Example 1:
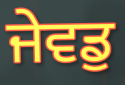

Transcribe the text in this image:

ਜੇਵਡੁ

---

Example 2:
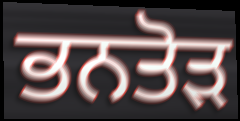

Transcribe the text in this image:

ਭਨਤੋੜ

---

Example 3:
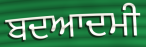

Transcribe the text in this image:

ਬਦਆਦਮੀ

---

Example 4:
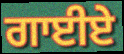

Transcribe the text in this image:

ਗਾਈਏ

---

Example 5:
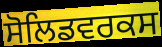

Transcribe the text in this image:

ਸੋਲਿਡਵਰਕਸ